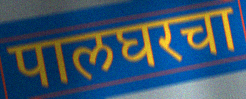
पालघरचा